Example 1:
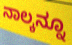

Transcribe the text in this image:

ನಾಲ್ಕನ್ನೂ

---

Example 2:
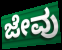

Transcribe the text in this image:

ಜೇವು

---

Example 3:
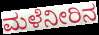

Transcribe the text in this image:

ಮಳೆನೀರಿನ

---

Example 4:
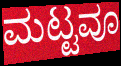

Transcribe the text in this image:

ಮಟ್ಟವೂ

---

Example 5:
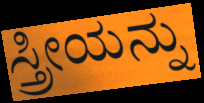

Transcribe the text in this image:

ಸ್ತ್ರೀಯನ್ನು